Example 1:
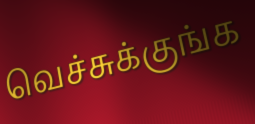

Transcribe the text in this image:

வெச்சுக்குங்க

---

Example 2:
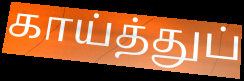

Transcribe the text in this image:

காய்த்துப்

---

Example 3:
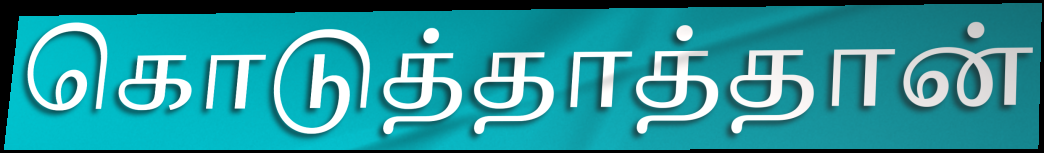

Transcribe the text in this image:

கொடுத்தாத்தான்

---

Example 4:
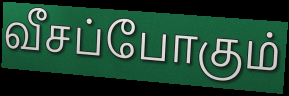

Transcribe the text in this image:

வீசப்போகும்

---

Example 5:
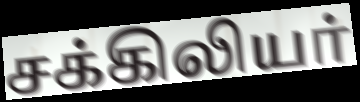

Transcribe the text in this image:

சக்கிலியர்